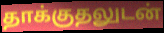
தாக்குதலுடன்